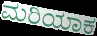
ಮರಿಯಾಕ